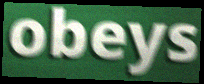
obeys